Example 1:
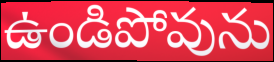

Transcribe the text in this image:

ఉండిపోవును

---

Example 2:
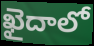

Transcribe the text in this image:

ఖైదాలో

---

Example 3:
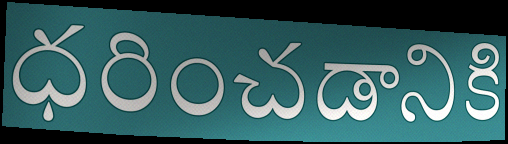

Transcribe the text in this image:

ధరించడానికి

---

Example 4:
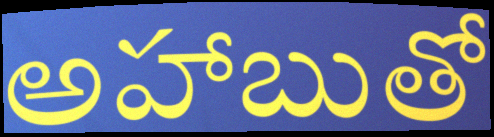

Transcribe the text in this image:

అహాబుతో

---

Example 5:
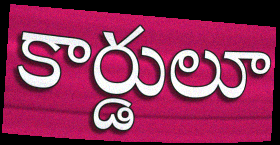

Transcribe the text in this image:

కార్డులూ